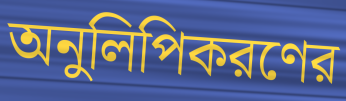
অনুলিপিকরণের